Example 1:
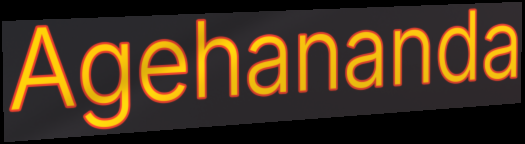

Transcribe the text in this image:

Agehananda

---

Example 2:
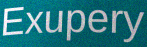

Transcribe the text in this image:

Exupery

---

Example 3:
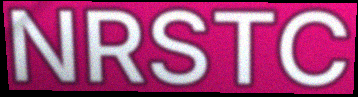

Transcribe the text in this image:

NRSTC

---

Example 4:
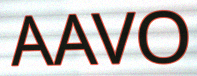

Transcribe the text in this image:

AAVO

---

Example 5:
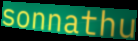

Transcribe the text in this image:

sonnathu